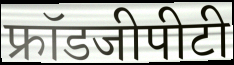
फ्रॉडजीपीटी